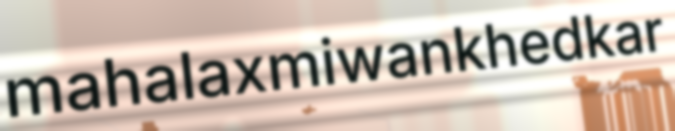
mahalaxmiwankhedkar